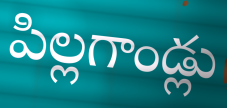
పిల్లగాండ్లు